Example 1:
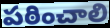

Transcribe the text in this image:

పఠించాలి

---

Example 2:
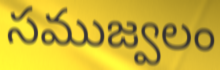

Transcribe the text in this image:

సముజ్వలం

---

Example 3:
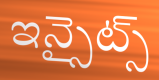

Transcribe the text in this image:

ఇన్సైట్స్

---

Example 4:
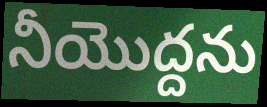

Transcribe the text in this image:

నీయొద్దను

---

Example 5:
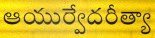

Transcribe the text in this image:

ఆయుర్వేదరీత్యా